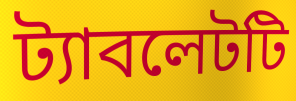
ট্যাবলেটটি